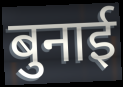
बुनाई